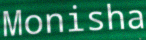
Monisha